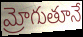
మ్రోగుతూనే